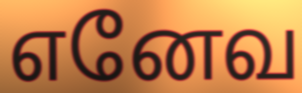
எனேவ